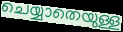
ചെയ്യാതെയുള്ള